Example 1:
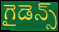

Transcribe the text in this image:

గైడెన్స్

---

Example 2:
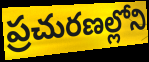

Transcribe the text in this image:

ప్రచురణల్లోని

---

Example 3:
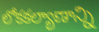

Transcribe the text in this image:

లోకకల్యాణాన్ని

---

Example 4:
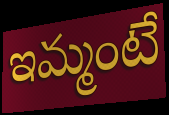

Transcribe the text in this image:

ఇమ్మంటే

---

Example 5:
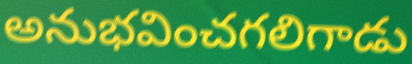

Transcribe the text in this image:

అనుభవించగలిగాడు